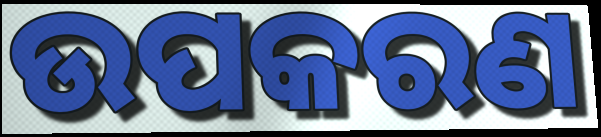
ଉପକରଣ